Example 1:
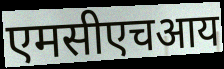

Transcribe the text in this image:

एमसीएचआय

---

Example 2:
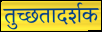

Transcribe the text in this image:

तुच्छतादर्शक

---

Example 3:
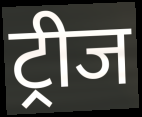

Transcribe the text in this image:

ट्रीज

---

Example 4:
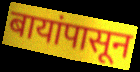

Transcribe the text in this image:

बायांपासून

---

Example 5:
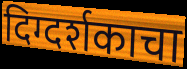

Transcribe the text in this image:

दिग्दर्शकाचा